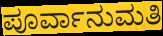
ಪೂರ್ವಾನುಮತಿ